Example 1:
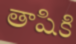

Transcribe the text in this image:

తాషికి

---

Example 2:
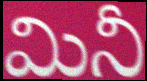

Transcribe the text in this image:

మినీ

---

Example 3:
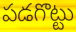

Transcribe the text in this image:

పడగొట్టు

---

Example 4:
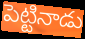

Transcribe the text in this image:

పెట్టినాడు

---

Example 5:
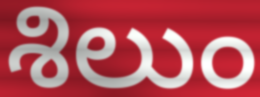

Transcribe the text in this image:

శిలుం